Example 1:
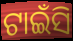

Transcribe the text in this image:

ଟାଇଁସି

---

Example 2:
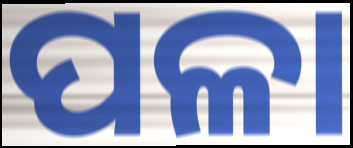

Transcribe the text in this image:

ପଳା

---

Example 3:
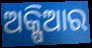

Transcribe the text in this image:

ଅକ୍ଷିଆର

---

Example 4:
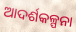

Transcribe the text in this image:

ଆଦର୍ଶକଳ୍ପନା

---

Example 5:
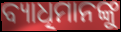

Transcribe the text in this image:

ବ୍ୟାଧିମାନଙ୍କୁ